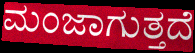
ಮಂಜಾಗುತ್ತದೆ